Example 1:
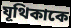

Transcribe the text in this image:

যূথিকাকে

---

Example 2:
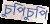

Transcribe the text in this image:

চুপিচুপি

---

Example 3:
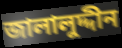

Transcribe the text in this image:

জালালুদ্দীন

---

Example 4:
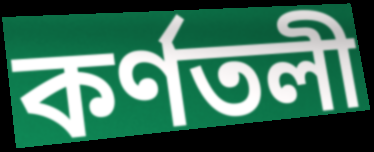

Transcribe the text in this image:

কর্ণতলী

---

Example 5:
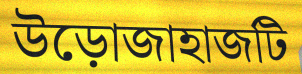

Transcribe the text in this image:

উড়োজাহাজটি